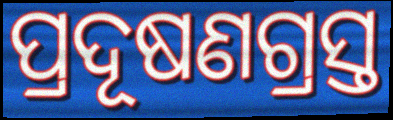
ପ୍ରଦୂଷଣଗ୍ରସ୍ତ